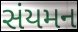
સંયમન